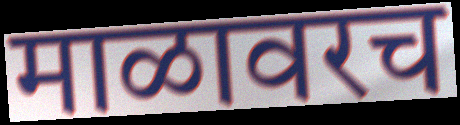
माळावरच